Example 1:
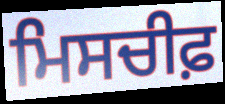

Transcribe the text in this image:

ਮਿਸਚੀਫ਼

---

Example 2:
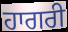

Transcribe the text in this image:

ਹਾਗਰੀ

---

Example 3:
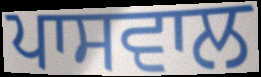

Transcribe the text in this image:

ਪਾਸਵਾਲ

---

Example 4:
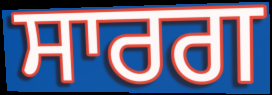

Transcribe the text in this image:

ਸਾਰਗ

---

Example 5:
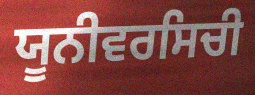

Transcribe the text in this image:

ਯੂਨੀਵਰਸਿਚੀ